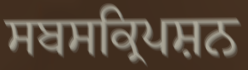
ਸਬਸਕ੍ਰਿਪਸ਼ਨ